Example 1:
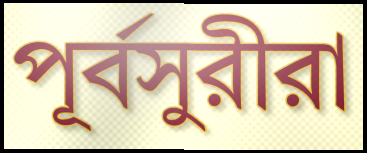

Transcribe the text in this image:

পূর্বসুরীরা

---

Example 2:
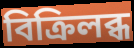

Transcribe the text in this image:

বিক্রিলব্ধ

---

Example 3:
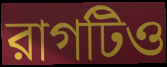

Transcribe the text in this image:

রাগটিও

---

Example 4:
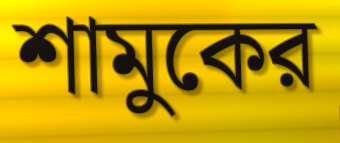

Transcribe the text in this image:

শামুকের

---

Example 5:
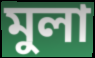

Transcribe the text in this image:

মুলা